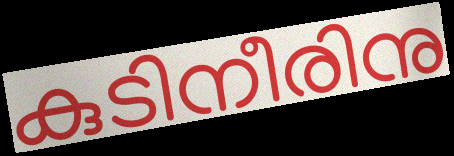
കുടിനീരിനു